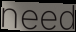
need